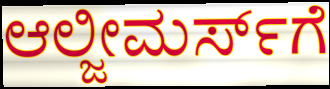
ಆಲ್ಜೀಮರ್ಸ್‌ಗೆ